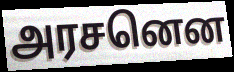
அரசனென